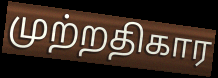
முற்றதிகார